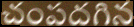
చంపదగిన